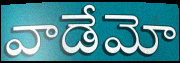
వాడేమో